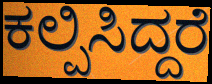
ಕಲ್ಪಿಸಿದ್ದರೆ